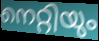
നെറ്റിയും